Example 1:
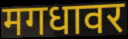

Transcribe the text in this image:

मगधावर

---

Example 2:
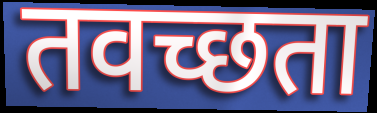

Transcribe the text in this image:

तवच्छता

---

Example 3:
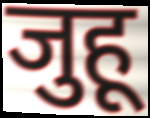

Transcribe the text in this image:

जुहू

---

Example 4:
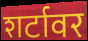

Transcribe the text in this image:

शर्टावर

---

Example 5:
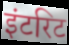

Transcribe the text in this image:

इंटरिट